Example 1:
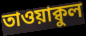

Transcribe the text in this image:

তাওয়াক্বুল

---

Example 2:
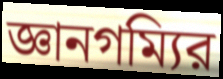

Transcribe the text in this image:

জ্ঞানগম্যির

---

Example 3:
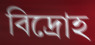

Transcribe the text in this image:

বিদ্রোহ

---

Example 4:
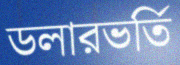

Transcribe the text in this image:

ডলারভর্তি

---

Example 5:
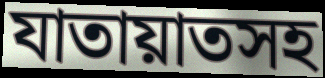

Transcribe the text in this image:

যাতায়াতসহ